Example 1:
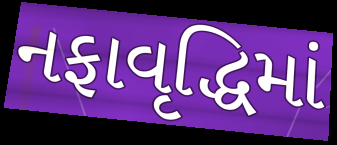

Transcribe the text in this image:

નફાવૃદ્ધિમાં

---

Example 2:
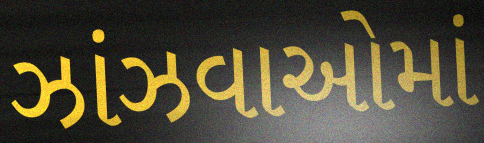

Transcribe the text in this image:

ઝાંઝવાઓમાં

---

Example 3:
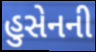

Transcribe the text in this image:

હુસેનની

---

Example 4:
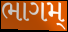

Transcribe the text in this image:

ભાગમ્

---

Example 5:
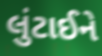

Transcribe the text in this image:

લુંટાઈને